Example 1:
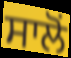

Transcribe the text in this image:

ਸਾਲੋਂ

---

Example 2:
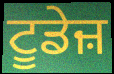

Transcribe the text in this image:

ਟੂਡੇਜ਼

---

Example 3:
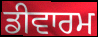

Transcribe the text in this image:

ਡੀਵਾਰਮ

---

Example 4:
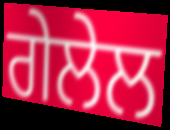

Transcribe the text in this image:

ਗੇਲੇਲ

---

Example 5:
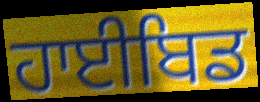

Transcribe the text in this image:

ਹਾਈਬਿਡ